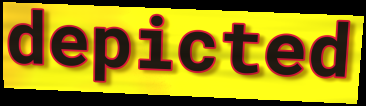
depicted